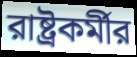
রাষ্ট্রকর্মীর